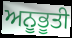
ਅਨੂਭੂਤੀ